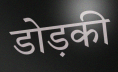
डोड़की